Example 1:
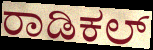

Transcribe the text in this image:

ರಾಡಿಕಲ್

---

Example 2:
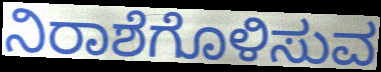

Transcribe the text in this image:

ನಿರಾಶೆಗೊಳಿಸುವ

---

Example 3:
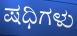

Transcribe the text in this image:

ಷಧಿಗಳು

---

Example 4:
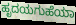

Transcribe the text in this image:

ಹೃದಯಗುಹೆಯಾ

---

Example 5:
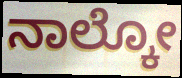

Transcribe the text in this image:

ನಾಲ್ಕೋ